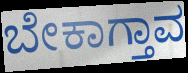
ಬೇಕಾಗ್ತಾವ